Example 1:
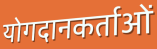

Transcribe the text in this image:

योगदानकर्ताओं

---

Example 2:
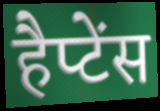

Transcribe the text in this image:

हैप्टेंस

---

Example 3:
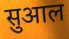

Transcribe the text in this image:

सुआल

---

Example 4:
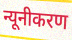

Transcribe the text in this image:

न्यूनीकरण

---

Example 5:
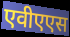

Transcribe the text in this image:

एवीएएस